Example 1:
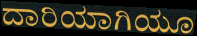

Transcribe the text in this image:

ದಾರಿಯಾಗಿಯೂ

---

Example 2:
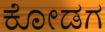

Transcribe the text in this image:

ಕೋಡಗ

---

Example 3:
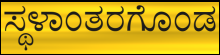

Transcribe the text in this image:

ಸ್ಥಳಾಂತರಗೊಂಡ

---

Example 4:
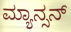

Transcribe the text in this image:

ಮ್ಯಾನ್ಸನ್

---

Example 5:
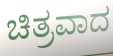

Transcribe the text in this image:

ಚಿತ್ರವಾದ